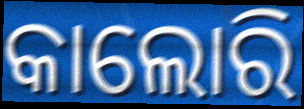
କାଲୋରି